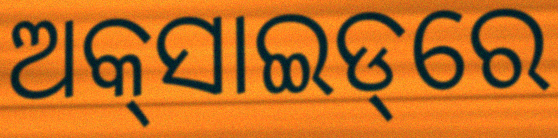
ଅକ୍‌ସାଇଡ୍‌ରେ